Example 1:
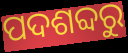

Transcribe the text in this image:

ପଦଶବ୍ଦରୁ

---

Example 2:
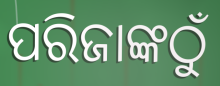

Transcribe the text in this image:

ପରିଜାଙ୍କଠୁଁ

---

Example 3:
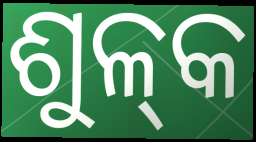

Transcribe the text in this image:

ଶୁଳ୍‌କ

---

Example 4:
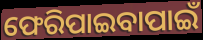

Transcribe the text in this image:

ଫେରିପାଇବାପାଇଁ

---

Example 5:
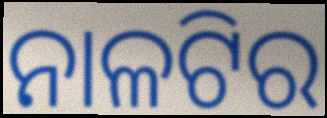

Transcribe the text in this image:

ନାଳଟିର